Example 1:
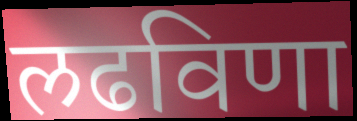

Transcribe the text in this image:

लढविणा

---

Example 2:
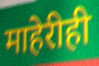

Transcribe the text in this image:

माहेरीही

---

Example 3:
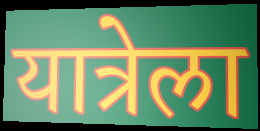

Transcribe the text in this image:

यात्रेला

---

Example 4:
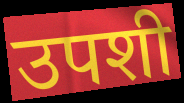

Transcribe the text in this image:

उपशी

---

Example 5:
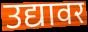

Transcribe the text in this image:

उद्यावर